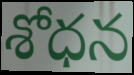
శోధన